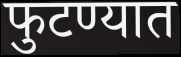
फुटण्यात